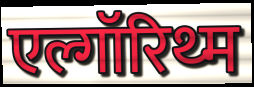
एल्गॉरिथ्म